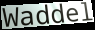
Waddel